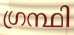
ഗ്രന്ഥി